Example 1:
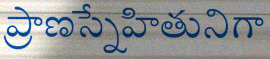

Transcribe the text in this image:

ప్రాణస్నేహితునిగా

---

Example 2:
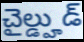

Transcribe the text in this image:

చైల్డ్హుడ్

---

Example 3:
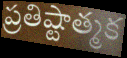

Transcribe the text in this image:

ప్రతిష్టాత్మక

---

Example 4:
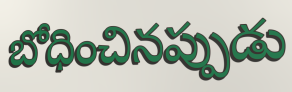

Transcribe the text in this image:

బోధించినప్పుడు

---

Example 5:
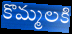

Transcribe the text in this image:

కొమ్మలకి